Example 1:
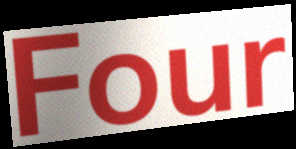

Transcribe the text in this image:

Four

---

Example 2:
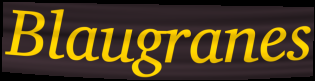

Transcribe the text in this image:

Blaugranes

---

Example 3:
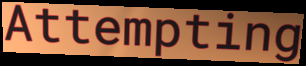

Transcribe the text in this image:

Attempting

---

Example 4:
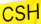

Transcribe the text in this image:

CSH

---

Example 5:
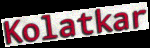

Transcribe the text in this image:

Kolatkar